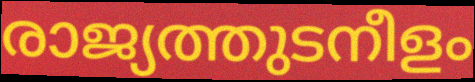
രാജ്യത്തുടനീളം